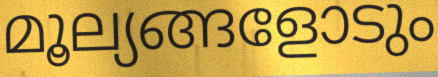
മൂല്യങ്ങളോടും